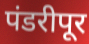
पंडरीपूर